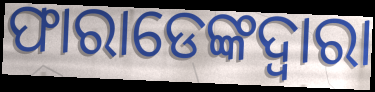
ଫାରାଡେଙ୍କଦ୍ୱାରା